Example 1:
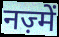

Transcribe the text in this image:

नज़्में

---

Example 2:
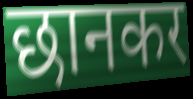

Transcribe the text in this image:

छानकर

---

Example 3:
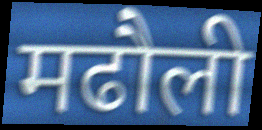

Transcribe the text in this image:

मढौली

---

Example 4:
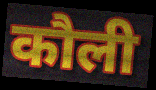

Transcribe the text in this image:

कौली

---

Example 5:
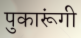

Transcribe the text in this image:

पुकारूंगी